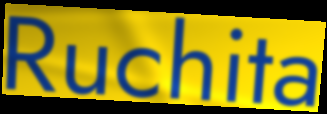
Ruchita